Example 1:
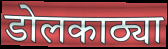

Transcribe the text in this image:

डोलकाठ्या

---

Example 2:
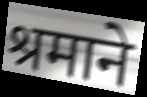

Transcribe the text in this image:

श्रमाने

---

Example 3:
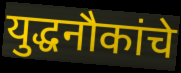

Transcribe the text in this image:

युद्धनौकांचे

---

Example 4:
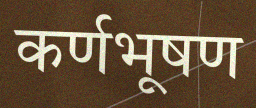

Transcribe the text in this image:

कर्णभूषण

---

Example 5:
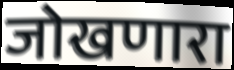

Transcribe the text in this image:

जोखणारा